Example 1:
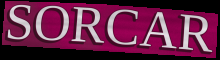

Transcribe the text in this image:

SORCAR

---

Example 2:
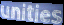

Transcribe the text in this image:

unities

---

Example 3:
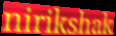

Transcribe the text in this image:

nirikshak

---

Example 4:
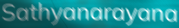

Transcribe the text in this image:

Sathyanarayana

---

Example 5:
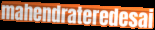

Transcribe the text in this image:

mahendrateredesai